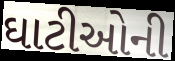
ઘાટીઓની